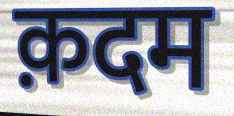
क़दम